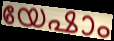
യേഷാം